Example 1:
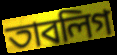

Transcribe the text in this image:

তাবলিগ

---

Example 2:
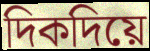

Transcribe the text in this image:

দিকদিয়ে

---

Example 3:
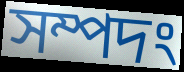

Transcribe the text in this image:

সম্পদং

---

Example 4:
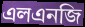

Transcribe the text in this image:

এলএনজি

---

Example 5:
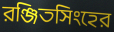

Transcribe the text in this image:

রঞ্জিতসিংহের